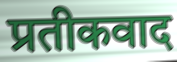
प्रतीकवाद